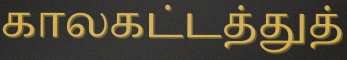
காலகட்டத்துத்